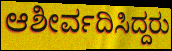
ಆಶೀರ್ವದಿಸಿದ್ದರು